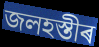
জলহস্তীৰ